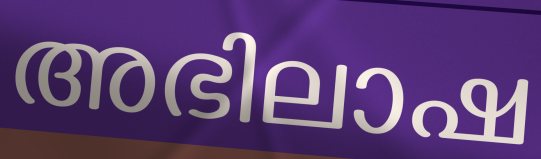
അഭിലാഷ